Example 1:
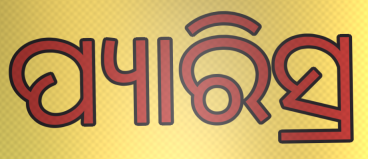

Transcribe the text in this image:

ପ୍ୟାରିସ୍ର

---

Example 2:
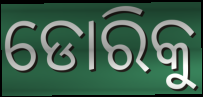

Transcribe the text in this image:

ଡୋରିକୁ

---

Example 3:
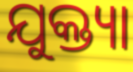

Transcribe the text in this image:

ଯୁକ୍ତ୍ୟା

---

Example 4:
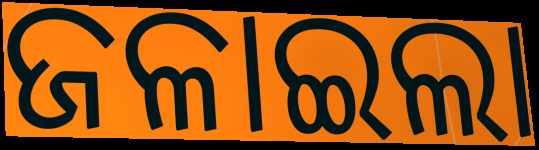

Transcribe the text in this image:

ଜଳାଇଲା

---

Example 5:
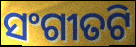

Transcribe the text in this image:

ସଂଗୀତଟି